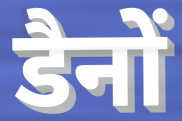
डैनों